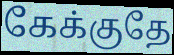
கேக்குதே